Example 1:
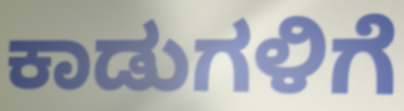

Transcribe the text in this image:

ಕಾಡುಗಳಿಗೆ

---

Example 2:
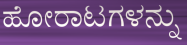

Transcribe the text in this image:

ಹೋರಾಟಗಳನ್ನು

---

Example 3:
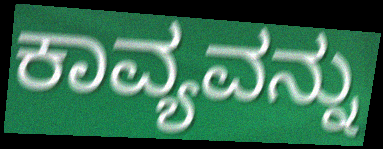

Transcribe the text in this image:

ಕಾವ್ಯವನ್ನು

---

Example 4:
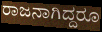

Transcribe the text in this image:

ರಾಜನಾಗಿದ್ದರೂ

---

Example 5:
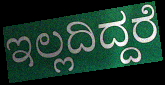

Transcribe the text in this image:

ಇಲ್ಲದಿದ್ದರೆ